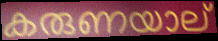
കരുണയാല്